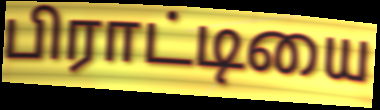
பிராட்டியை